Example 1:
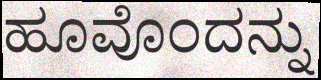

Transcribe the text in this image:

ಹೂವೊಂದನ್ನು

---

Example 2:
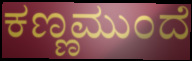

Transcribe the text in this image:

ಕಣ್ಣಮುಂದೆ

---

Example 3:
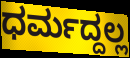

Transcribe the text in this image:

ಧರ್ಮದ್ದಲ್ಲ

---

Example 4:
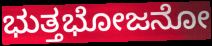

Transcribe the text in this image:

ಭುತ್ತಭೋಜನೋ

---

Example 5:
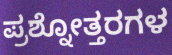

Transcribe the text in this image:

ಪ್ರಶ್ನೋತ್ತರಗಳ